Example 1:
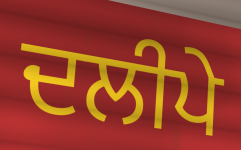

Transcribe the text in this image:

ਦਲੀਪੇ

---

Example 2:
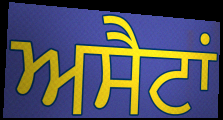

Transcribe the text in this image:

ਅਸੈਟਾਂ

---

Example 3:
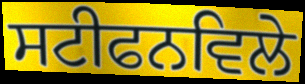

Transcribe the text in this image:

ਸਟੀਫਨਵਿਲੇ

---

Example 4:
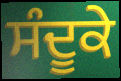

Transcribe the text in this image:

ਸੰਦੂਕੇ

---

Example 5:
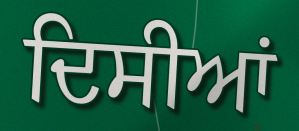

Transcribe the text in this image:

ਦਿਸੀਆਂ